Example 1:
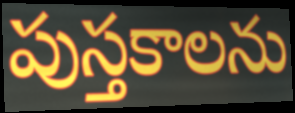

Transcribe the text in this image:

పుస్తకాలను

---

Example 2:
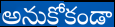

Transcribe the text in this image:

అనుకోకండా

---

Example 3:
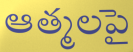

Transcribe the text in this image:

ఆత్మలపై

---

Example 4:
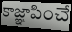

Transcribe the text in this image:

కాజ్ఞాపించే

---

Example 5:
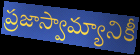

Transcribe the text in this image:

ప్రజాస్వామ్యానికీ